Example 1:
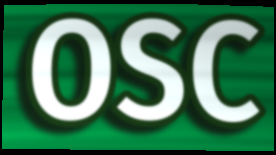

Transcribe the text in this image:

OSC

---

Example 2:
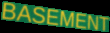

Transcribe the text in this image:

BASEMENT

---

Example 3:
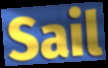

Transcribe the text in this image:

Sail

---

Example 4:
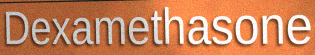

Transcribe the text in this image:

Dexamethasone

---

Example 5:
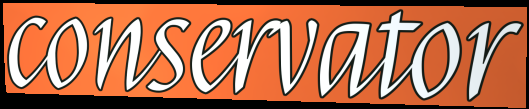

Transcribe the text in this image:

conservator